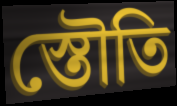
স্তৌতি